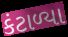
કંટાળ્યા